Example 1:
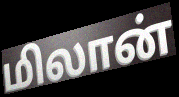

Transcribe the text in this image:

மிலான்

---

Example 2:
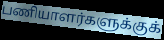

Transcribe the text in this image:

பணியாளர்களுக்குக்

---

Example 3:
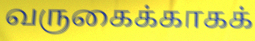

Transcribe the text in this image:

வருகைக்காகக்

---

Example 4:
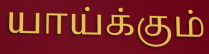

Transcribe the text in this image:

யாய்க்கும்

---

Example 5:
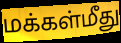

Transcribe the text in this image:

மக்கள்மீது